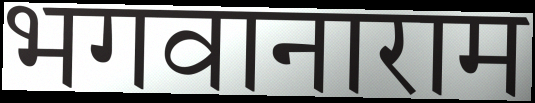
भगवानाराम